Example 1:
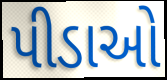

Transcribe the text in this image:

પીડાઓ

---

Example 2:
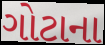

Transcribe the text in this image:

ગોટાના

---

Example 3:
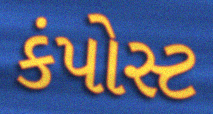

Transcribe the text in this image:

કંપોસ્ટ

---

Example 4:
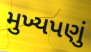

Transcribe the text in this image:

મુખ્યપણું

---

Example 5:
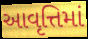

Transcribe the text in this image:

આવૃત્તિમાં